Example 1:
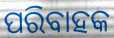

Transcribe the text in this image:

ପରିବାହକ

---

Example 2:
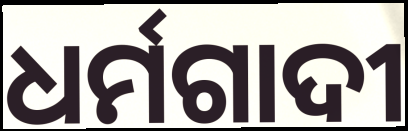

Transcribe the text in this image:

ଧର୍ମଗାଦୀ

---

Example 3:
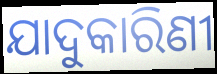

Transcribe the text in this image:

ଯାଦୁକାରିଣୀ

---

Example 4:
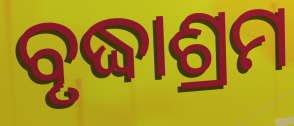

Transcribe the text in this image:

ବୃଦ୍ଧାଶ୍ରମ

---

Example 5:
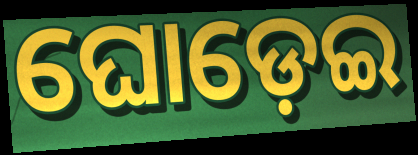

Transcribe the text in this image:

ଘୋଡ଼େଇ